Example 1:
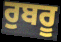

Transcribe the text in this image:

ਰੁਬਰੂ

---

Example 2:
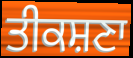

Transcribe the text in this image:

ਤੀਕਸ਼ਣਾ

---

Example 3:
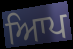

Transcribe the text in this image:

ਆਿਪ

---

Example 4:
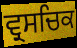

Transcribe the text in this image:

ਵ੍ਰਸਚਿਕ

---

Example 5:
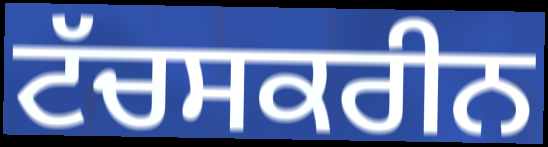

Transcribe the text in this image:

ਟੱਚਸਕਰੀਨ